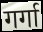
गर्गा